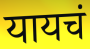
यायचं